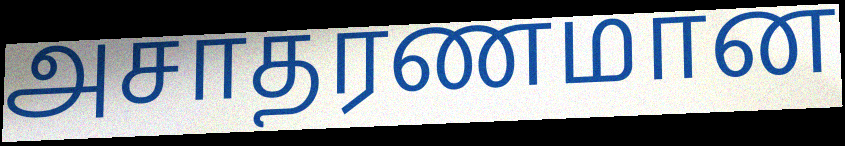
அசாதரணமான